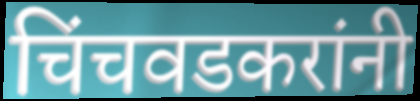
चिंचवडकरांनी